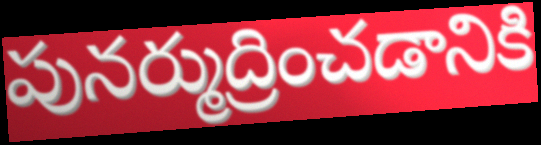
పునర్ముద్రించడానికి